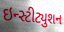
ઇન્સ્ટીટ્યુશન